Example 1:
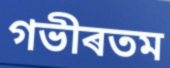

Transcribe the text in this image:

গভীৰতম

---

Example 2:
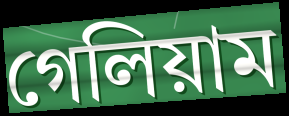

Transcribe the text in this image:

গেলিয়াম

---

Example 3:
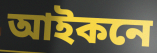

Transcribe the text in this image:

আইকনে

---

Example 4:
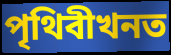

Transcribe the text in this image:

পৃথিবীখনত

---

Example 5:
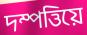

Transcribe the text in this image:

দম্পত্তিয়ে